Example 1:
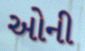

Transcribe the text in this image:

ઓની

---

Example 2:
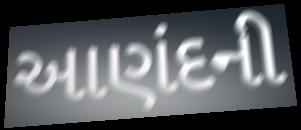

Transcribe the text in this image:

આણંદની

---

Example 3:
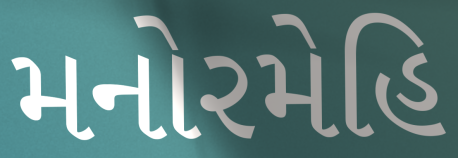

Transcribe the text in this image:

મનોરમેહિ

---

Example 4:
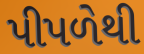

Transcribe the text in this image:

પીપળેથી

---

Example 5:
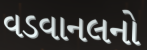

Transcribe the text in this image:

વડવાનલનો